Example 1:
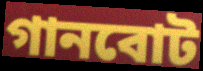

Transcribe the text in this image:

গানবোট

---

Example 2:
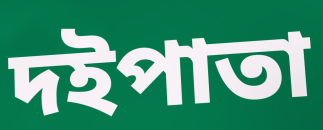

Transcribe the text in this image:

দইপাতা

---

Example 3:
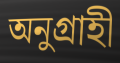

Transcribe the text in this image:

অনুগ্রাহী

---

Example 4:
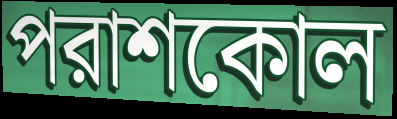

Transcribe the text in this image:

পরাশকোল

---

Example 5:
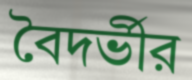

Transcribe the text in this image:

বৈদর্ভীর